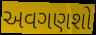
અવગણશો